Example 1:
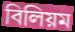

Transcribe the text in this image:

বিলিয়ম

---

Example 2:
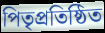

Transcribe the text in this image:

পিতৃপ্রতিষ্ঠিত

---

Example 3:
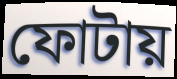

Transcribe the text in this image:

ফোটায়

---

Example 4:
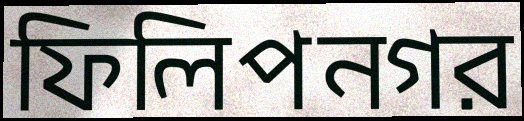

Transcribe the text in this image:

ফিলিপনগর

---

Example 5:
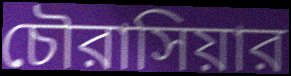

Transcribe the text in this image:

চৌরাসিয়ার